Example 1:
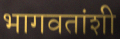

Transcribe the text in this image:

भागवतांशी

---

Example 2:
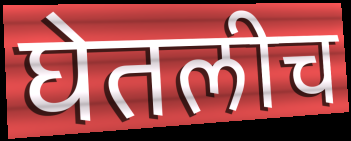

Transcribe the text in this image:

घेतलीच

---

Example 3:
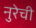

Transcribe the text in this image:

नुरेची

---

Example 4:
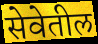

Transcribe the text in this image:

सेवेतील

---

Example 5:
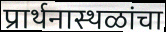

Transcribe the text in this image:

प्रार्थनास्थळांचा